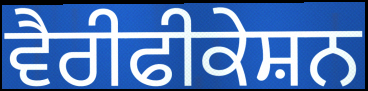
ਵੈਰੀਫੀਕੇਸ਼ਨ